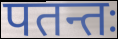
पतन्तः